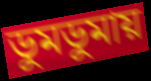
ডুমডুমায়